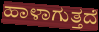
ಹಾಳಾಗುತ್ತದೆ